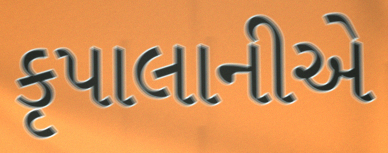
કૃપાલાનીએ